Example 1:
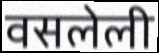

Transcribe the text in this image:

वसलेली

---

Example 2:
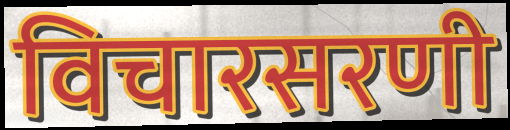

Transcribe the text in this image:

विचारसरणी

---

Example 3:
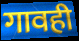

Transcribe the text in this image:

गावही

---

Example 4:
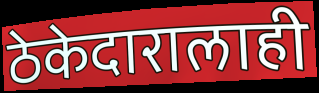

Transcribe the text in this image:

ठेकेदारालाही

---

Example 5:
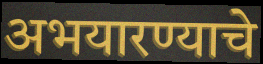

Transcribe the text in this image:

अभयारण्याचे